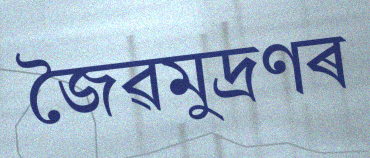
জৈৱমুদ্ৰণৰ